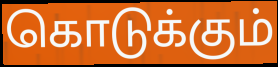
கொடுக்கும்